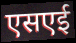
एसएई